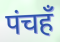
पंचहँ